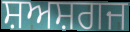
ਸ਼ਅਸ਼ਗਜ